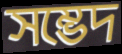
সম্ভেদ